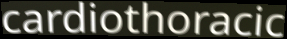
cardiothoracic